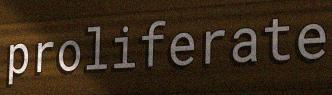
proliferate